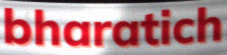
bharatich